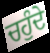
ਚਹੁੰਦੇ